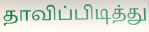
தாவிப்பிடித்து